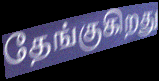
தேங்குகிறது